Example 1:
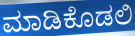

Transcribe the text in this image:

ಮಾಡಿಕೊಡಲಿ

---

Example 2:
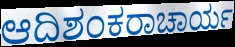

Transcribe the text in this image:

ಆದಿಶಂಕರಾಚಾರ್ಯ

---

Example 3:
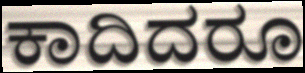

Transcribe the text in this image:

ಕಾದಿದರೂ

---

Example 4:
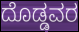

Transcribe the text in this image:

ದೊಡ್ಡವರ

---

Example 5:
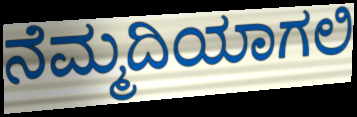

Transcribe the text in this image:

ನೆಮ್ಮದಿಯಾಗಲಿ